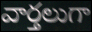
వార్తలుగా